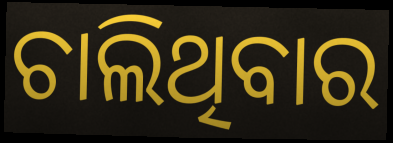
ଚାଲିଥିବାର